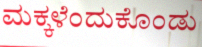
ಮಕ್ಕಳೆಂದುಕೊಂಡು